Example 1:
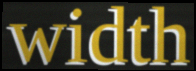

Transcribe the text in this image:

width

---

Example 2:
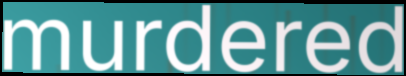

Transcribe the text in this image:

murdered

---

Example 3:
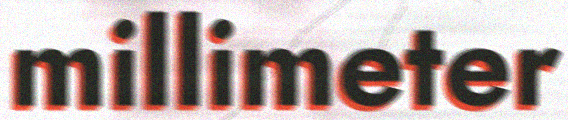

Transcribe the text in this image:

millimeter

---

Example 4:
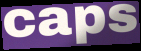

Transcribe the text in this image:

caps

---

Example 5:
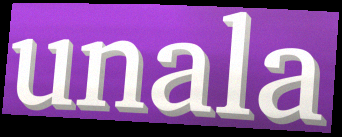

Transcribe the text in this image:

unala